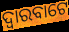
ଦ୍ୱାରବାଟେ